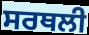
ਸਰਥਲੀ